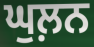
ਘੁਲ਼ਨ